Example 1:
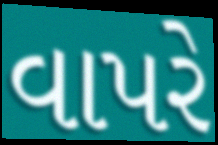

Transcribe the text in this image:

વાપરે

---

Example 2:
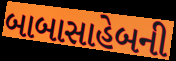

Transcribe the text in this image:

બાબાસાહેબની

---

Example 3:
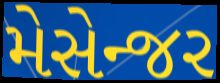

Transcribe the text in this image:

મેસેન્જર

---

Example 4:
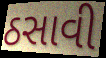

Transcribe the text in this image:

ઠસાવી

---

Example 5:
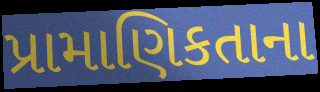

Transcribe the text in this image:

પ્રામાણિકતાના